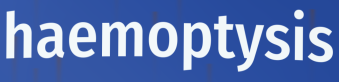
haemoptysis